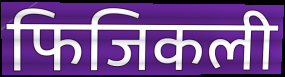
फिजिकली